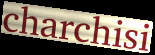
charchisi